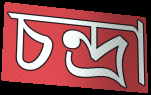
চন্দ্রা